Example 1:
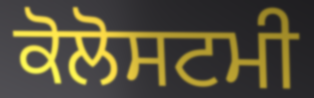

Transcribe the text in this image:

ਕੋਲੋਸਟਮੀ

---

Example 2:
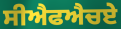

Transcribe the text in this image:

ਸੀਐਫਐਚਏ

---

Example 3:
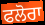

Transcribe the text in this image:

ਫਲੋਰਾ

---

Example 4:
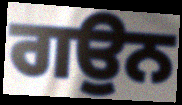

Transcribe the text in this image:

ਗਉਨ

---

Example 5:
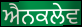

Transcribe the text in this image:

ਐਨਕਲੇਵ